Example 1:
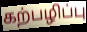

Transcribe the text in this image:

கற்பழிப்பு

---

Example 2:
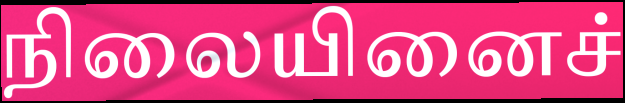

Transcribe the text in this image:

நிலையினைச்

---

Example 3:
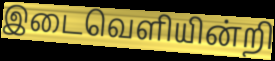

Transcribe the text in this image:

இடைவெளியின்றி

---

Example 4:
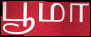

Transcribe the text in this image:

பூமா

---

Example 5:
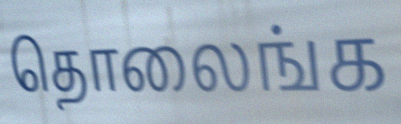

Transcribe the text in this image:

தொலைங்க